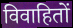
विवाहितों